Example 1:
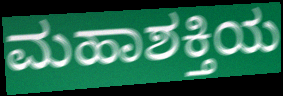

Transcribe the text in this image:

ಮಹಾಶಕ್ತಿಯ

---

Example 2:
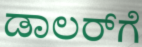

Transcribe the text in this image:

ಡಾಲರ್‌ಗೆ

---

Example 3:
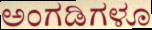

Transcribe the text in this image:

ಅಂಗಡಿಗಳೂ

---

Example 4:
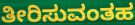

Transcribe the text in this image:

ತೀರಿಸುವಂತಹ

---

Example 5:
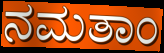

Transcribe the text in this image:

ನಮತಾಂ